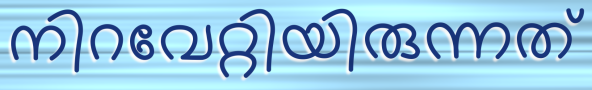
നിറവേറ്റിയിരുന്നത്